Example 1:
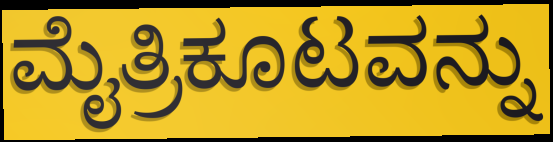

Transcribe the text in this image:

ಮೈತ್ರಿಕೂಟವನ್ನು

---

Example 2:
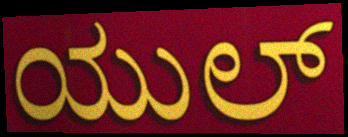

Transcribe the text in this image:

ಯುಲ್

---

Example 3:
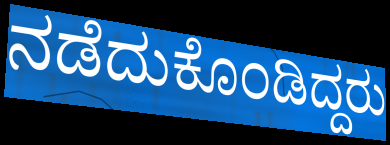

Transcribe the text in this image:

ನಡೆದುಕೊಂಡಿದ್ದರು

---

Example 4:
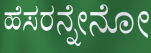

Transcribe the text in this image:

ಹೆಸರನ್ನೇನೋ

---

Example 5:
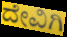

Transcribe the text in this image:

ದೇವಿಗಿ